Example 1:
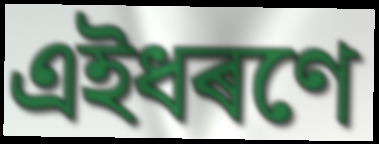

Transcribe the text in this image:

এইধৰণে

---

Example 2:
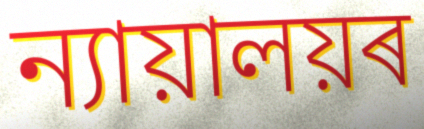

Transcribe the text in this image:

ন্যায়ালয়ৰ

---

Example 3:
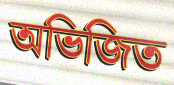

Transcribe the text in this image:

অভিজিত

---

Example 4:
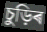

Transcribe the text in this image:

চুড়িৰ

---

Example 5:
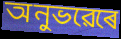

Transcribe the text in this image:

অনুভৱেৰে